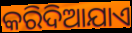
କରିଦିଆଯାଏ